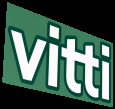
vitti